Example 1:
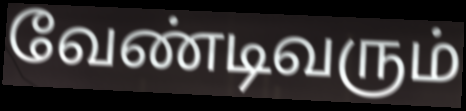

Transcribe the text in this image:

வேண்டிவரும்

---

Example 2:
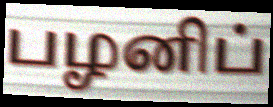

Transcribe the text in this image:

பழனிப்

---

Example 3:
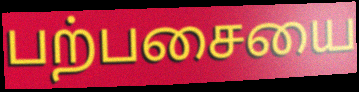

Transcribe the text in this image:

பற்பசையை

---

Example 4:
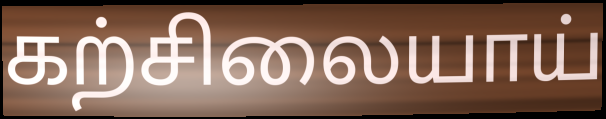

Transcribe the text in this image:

கற்சிலையாய்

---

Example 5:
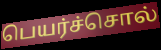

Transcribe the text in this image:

பெயர்ச்சொல்